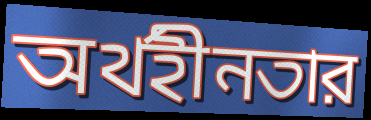
অর্থহীনতার